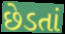
છેડતાં